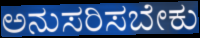
ಅನುಸರಿಸಬೇಕು